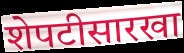
शेपटीसारखा